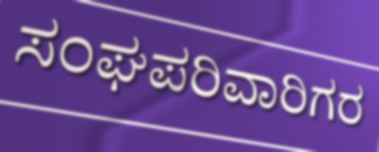
ಸಂಘಪರಿವಾರಿಗರ